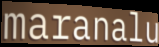
maranalu